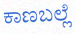
ಕಾಣಬಲ್ಲೆ